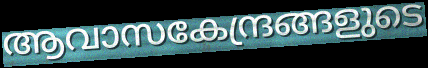
ആവാസകേന്ദ്രങ്ങളുടെ